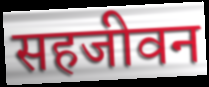
सहजीवन